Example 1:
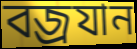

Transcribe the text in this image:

বজ্ৰযান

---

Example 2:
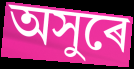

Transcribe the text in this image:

অসুৰে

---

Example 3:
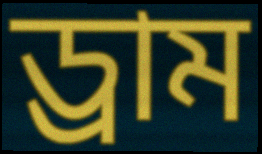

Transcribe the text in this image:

ড্ৰাম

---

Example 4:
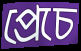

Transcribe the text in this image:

প্ৰেচে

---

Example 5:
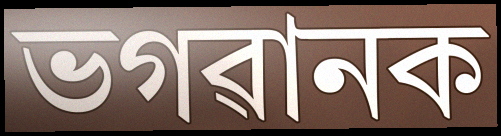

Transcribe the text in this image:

ভগৱানক